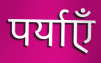
पर्याएँ